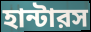
হান্টারস